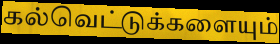
கல்வெட்டுக்களையும்